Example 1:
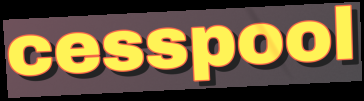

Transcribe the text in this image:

cesspool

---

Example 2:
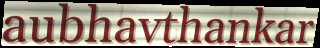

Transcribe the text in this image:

aubhavthankar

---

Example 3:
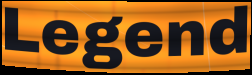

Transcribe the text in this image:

Legend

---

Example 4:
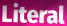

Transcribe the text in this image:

Literal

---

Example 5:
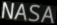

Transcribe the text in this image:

NASA